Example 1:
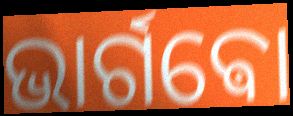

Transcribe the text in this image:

ଭାର୍ଗଵୋ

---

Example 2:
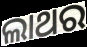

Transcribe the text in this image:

ଲାଥର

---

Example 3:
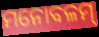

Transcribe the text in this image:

ମନୋବଳମ୍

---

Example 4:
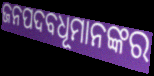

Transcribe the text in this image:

ଜନପଦବଧୂମାନଙ୍କର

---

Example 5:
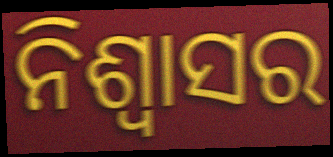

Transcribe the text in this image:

ନିଶ୍ବାସର